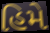
હિમે